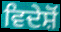
ਵਿਦੇਸ਼ੋਂ